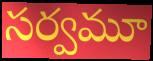
సర్వమూ